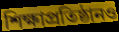
শিক্ষাপ্রতিষ্ঠানও